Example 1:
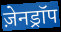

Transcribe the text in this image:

ज़ेनड्रॉप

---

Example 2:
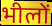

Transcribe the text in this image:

भीलों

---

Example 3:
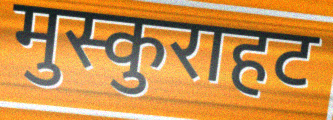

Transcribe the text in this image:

मुस्कुराहट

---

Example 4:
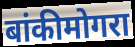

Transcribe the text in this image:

बांकीमोगरा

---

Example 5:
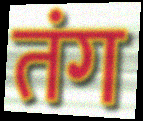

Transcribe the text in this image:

तंग